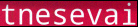
tnesevai